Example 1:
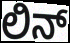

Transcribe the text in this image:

ಲಿನ್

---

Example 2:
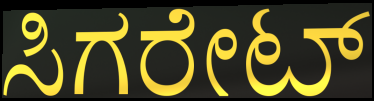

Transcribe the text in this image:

ಸಿಗರೇಟ್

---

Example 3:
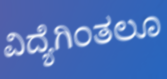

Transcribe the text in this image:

ವಿದ್ಯೆಗಿಂತಲೂ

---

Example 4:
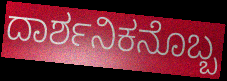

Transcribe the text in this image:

ದಾರ್ಶನಿಕನೊಬ್ಬ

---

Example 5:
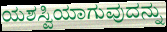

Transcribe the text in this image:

ಯಶಸ್ವಿಯಾಗುವುದನ್ನು